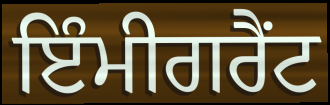
ਇੰਮੀਗਰੈਂਟ